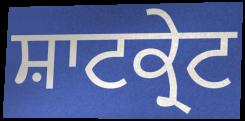
ਸ਼ਾਟਕ੍ਰੇਟ